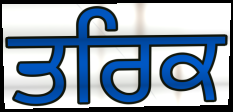
ਤਰਿਕ